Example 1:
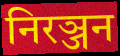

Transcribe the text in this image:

निरञ्जन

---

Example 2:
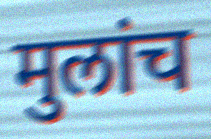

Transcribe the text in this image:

मुलांच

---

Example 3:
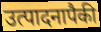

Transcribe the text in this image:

उत्पादनापैकी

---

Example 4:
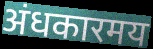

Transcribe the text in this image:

अंधकारमय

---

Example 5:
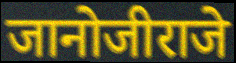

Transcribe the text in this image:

जानोजीराजे